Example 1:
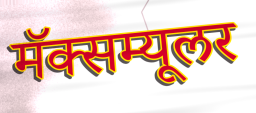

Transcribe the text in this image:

मॅक्सम्यूलर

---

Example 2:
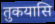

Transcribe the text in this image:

तुकयासि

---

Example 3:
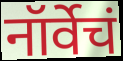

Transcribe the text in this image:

नॉर्वेचं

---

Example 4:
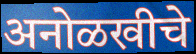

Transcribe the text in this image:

अनोळखीचे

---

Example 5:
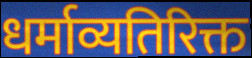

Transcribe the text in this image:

धर्माव्यतिरिक्त